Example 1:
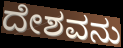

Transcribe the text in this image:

ದೇಶವನು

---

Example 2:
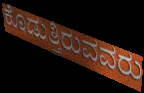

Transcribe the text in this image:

ಕೊಡುತ್ತಿರುವವರು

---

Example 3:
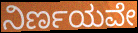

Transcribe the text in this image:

ನಿರ್ಣಯವೇ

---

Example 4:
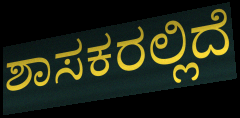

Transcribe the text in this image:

ಶಾಸಕರಲ್ಲಿದೆ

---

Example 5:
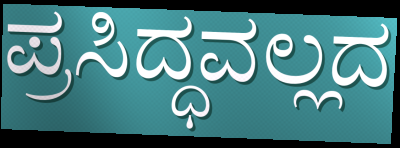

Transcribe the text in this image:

ಪ್ರಸಿದ್ಧವಲ್ಲದ